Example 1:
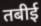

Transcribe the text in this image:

तबीई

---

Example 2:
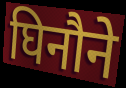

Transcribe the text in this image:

घिनौने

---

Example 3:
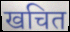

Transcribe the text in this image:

खचित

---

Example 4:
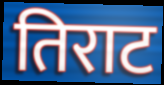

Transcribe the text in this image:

तिराट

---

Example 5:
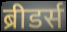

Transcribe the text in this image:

ब्रीडर्स